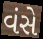
વંસે